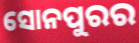
ସୋନପୁରର